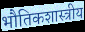
भौतिकशास्त्रीय